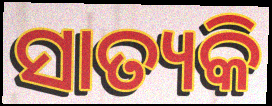
ସାତ୍ୟକି